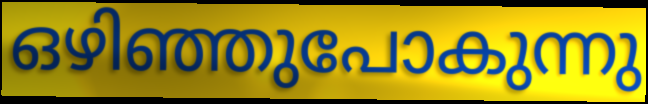
ഒഴിഞ്ഞുപോകുന്നു